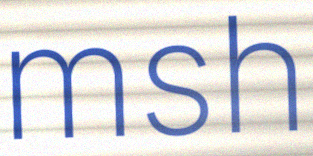
msh